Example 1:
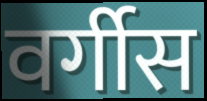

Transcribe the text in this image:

वर्गीस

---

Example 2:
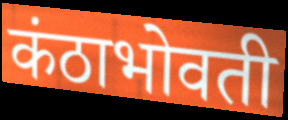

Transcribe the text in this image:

कंठाभोवती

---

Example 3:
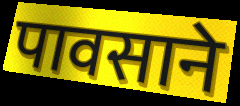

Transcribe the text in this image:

पावसाने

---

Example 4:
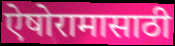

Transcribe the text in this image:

ऐषोरामासाठी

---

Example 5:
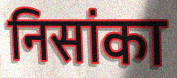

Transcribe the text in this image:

निसांका